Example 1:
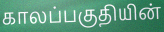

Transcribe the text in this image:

காலப்பகுதியின்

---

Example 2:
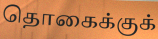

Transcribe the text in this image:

தொகைக்குக்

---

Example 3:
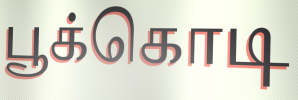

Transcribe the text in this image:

பூக்கொடி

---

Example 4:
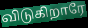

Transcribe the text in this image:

விடுகிறாரே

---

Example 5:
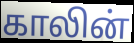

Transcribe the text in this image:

காலின்